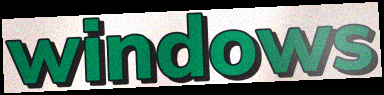
windows